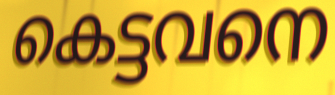
കെട്ടവനെ